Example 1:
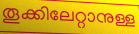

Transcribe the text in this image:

തൂക്കിലേറ്റാനുള്ള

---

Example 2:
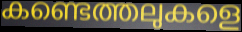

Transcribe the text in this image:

കണ്ടെത്തലുകളെ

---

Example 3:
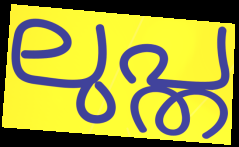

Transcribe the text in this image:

ലുപ്ത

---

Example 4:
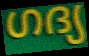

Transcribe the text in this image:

ഗദ്യ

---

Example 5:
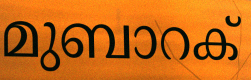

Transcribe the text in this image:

മുബാറക്